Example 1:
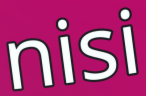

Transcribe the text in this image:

nisi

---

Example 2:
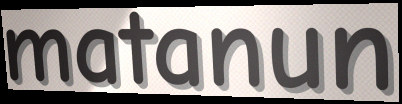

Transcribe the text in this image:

matanun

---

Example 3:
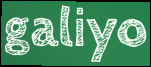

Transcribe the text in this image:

galiyo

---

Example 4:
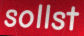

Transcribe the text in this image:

sollst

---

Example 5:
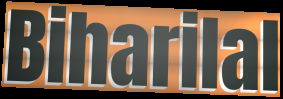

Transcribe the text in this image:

Biharilal